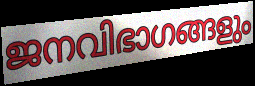
ജനവിഭാഗങ്ങളും